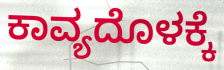
ಕಾವ್ಯದೊಳಕ್ಕೆ